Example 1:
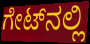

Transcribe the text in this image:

ಗೇಟ್‌ನಲ್ಲಿ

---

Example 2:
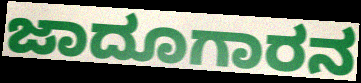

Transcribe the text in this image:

ಜಾದೂಗಾರನ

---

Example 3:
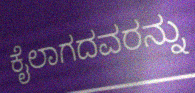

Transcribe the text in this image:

ಕೈಲಾಗದವರನ್ನು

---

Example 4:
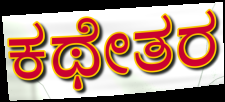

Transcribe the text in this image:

ಕಥೇತರ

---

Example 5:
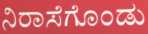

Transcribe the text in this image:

ನಿರಾಸೆಗೊಂಡು